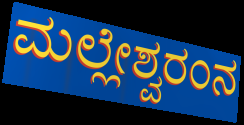
ಮಲ್ಲೇಶ್ವರಂನ